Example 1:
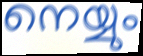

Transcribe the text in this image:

നെയ്യും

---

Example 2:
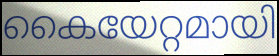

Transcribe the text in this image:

കൈയേറ്റമായി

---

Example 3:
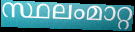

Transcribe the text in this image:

സ്ഥലംമാറ്റ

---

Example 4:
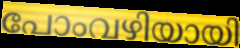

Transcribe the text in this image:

പോംവഴിയായി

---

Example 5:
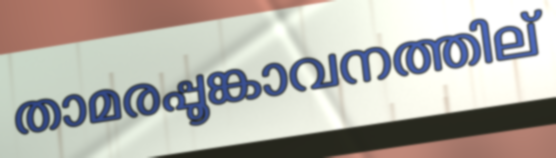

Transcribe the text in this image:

താമരപ്പൂങ്കാവനത്തില്